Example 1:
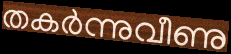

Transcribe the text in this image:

തകർന്നുവീണു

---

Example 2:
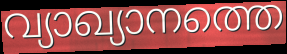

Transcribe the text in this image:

വ്യാഖ്യാനത്തെ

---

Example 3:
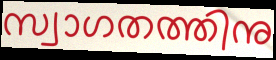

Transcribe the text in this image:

സ്വാഗതത്തിനു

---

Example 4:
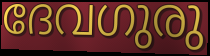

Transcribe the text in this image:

ദേവഗുരു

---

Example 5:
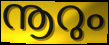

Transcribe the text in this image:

നൂറും